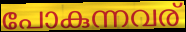
പോകുന്നവര്